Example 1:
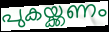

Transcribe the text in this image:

പുകയ്ക്കണം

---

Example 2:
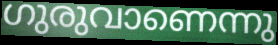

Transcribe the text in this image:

ഗുരുവാണെന്നു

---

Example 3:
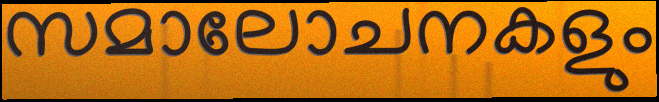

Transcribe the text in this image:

സമാലോചനകളും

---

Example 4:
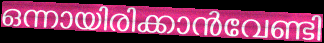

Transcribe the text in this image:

ഒന്നായിരിക്കാൻവേണ്ടി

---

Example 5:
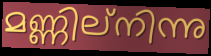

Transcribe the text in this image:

മണ്ണില്നിന്നു